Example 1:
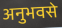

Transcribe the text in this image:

अनुभवसे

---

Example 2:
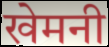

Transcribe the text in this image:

खेमनी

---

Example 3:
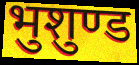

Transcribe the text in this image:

भुशुण्ड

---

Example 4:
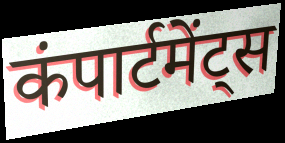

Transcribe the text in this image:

कंपार्टमेंट्स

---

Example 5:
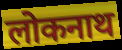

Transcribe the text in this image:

लोकनाथ